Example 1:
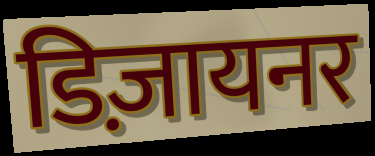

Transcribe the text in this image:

डिज़ायनर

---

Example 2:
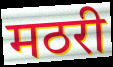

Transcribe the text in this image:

मठरी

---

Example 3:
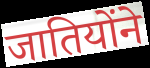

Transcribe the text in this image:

जातियोंने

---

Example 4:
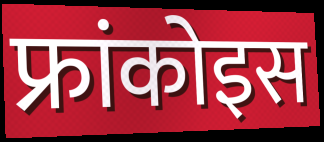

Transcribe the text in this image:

फ्रांकोइस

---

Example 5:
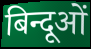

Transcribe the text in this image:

बिन्दूओं